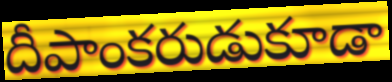
దీపాంకరుడుకూడా